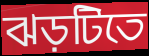
ঝড়টিতে